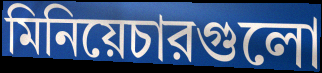
মিনিয়েচারগুলো